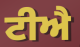
ਟੀਐ